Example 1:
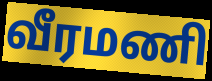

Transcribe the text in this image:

வீரமணி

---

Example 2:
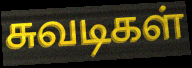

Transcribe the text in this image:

சுவடிகள்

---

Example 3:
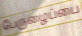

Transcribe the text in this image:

பேருழைப்பை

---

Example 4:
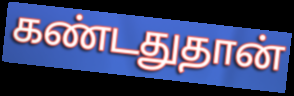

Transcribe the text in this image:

கண்டதுதான்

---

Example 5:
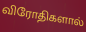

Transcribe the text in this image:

விரோதிகளால்